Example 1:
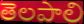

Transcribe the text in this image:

తెలపాలి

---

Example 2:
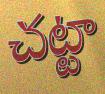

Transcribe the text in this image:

చట్టా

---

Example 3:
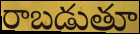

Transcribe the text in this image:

రాబడుతూ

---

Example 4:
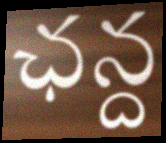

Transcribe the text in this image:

ఛన్ద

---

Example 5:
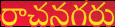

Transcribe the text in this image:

రాచనగరు